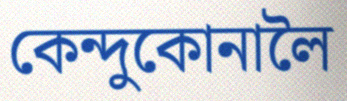
কেন্দুকোনালৈ